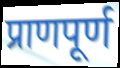
प्राणपूर्ण